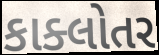
કાક્લોતર